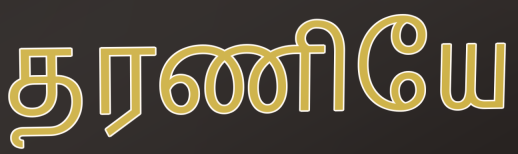
தரணியே